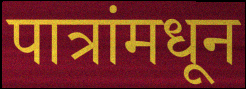
पात्रांमधून